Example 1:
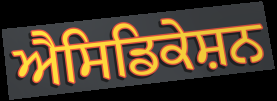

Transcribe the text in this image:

ਐਸਿਡਿਕੇਸ਼ਨ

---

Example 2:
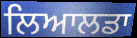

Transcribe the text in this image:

ਲਿਆਲਡਾ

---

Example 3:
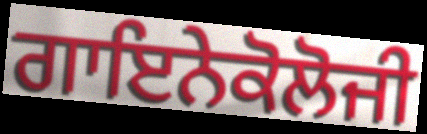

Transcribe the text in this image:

ਗਾਇਨੇਕੋਲੋਜੀ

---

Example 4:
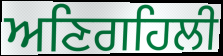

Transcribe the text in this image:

ਅਣਿਗਹਿਲੀ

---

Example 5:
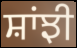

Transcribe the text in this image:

ਸ਼ਾਂਝੀ